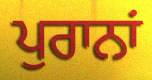
ਪੁਰਾਨਾਂ